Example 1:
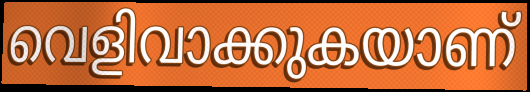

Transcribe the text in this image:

വെളിവാക്കുകയാണ്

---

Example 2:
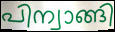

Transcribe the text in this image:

പിന്വാങ്ങി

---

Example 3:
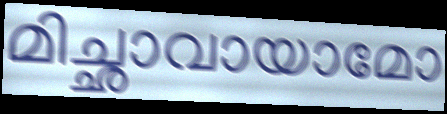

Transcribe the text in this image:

മിച്ഛാവായാമോ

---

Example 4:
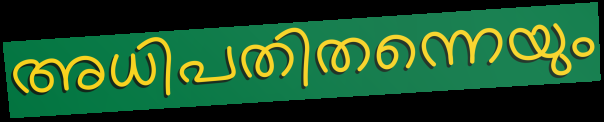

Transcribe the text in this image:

അധിപതിതന്നെയും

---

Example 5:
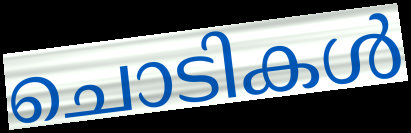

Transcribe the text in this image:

ചൊടികൾ